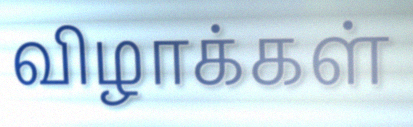
விழாக்கள்